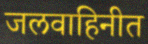
जलवाहिनीत